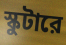
স্কুটারে